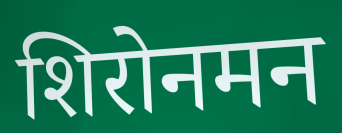
शिरोनमन